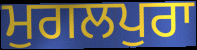
ਮੁਗਲਪੁਰਾ